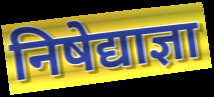
निषेद्याज्ञा